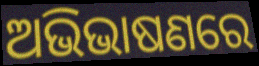
ଅଭିଭାଷଣରେ